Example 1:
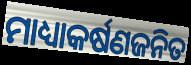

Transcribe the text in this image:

ମାଧ୍ୟାକର୍ଷଣଜନିତ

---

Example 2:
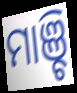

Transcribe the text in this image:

ମାଞ୍ଚି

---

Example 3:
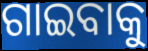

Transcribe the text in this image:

ଗାଇବାକୁ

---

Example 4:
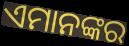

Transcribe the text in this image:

ଏମାନଙ୍କର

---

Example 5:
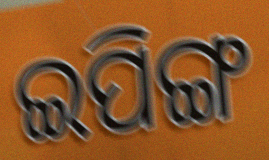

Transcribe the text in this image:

ଇପିଙ୍ଗ